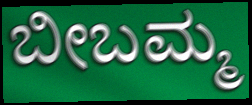
ಬೀಬಮ್ಮ